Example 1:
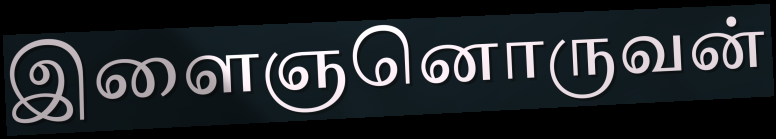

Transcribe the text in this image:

இளைஞனொருவன்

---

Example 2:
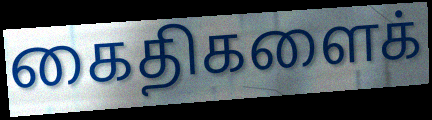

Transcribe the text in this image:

கைதிகளைக்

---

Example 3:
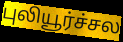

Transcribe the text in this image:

புலியூர்ச்சல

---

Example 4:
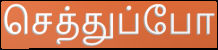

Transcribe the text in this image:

செத்துப்போ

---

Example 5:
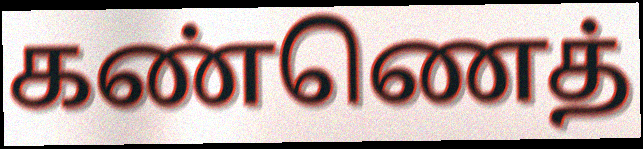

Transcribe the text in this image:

கண்ணெத்